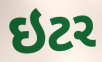
ઇટર